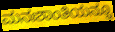
ಮನಃಶಾಂತಿಯನ್ನೂ